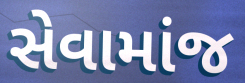
સેવામાંજ